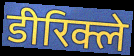
डीरिक्ले